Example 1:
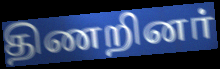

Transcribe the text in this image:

திணறினர்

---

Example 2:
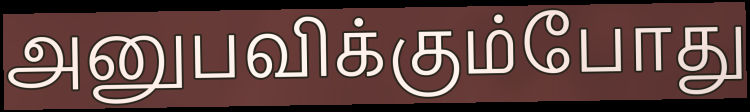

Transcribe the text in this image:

அனுபவிக்கும்போது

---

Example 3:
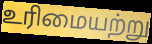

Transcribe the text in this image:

உரிமையற்று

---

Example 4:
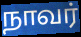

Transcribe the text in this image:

நாவர்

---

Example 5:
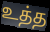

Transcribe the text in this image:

உத்த